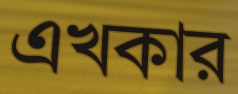
এখকার